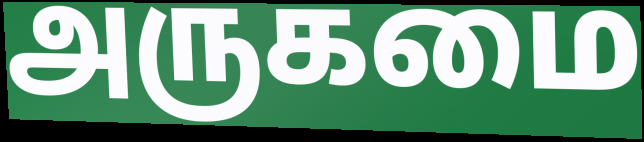
அருகமை